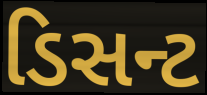
ડિસન્ટ